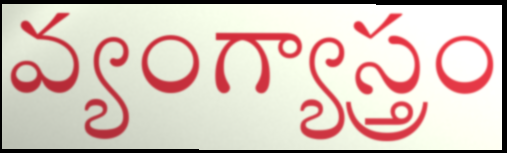
వ్యంగ్యాస్త్రం